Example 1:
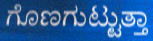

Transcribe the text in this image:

ಗೊಣಗುಟ್ಟುತ್ತಾ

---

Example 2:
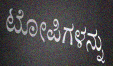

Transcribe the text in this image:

ಟೋಪಿಗಳನ್ನು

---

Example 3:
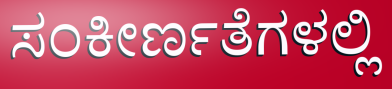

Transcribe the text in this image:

ಸಂಕೀರ್ಣತೆಗಳಲ್ಲಿ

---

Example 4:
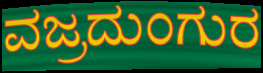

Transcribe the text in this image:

ವಜ್ರದುಂಗುರ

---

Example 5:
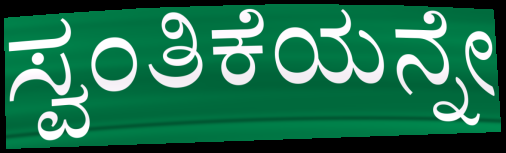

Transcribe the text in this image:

ಸ್ವಂತಿಕೆಯನ್ನೇ